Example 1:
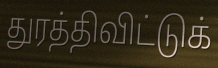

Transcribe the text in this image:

துரத்திவிட்டுக்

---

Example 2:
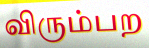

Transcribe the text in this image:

விரும்பற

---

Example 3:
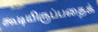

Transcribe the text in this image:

கூடியிருப்பதைக்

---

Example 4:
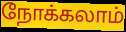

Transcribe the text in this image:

நோக்கலாம்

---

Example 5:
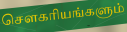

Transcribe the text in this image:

சௌகரியங்களும்